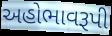
અહોભાવરૂપી